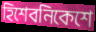
হিশেবনিকেশে